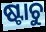
ଷ୍ଟାଚୁ